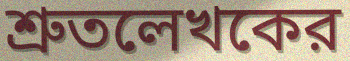
শ্রুতলেখকের